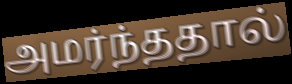
அமர்ந்ததால்